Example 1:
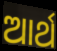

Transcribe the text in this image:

ଆର୍ଥ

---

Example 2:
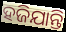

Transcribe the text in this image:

ହଜିଯାନ୍ତି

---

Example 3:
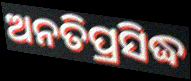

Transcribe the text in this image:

ଅନତିପ୍ରସିଦ୍ଧ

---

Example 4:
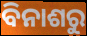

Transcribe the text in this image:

ବିନାଶରୁ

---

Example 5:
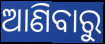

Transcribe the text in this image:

ଆଣିବାରୁ